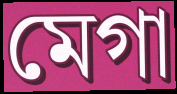
মেগা